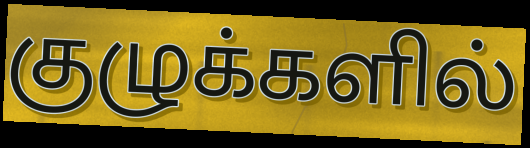
குழுக்களில்